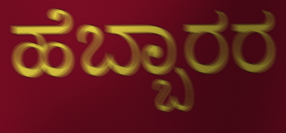
ಹೆಬ್ಬಾರರ